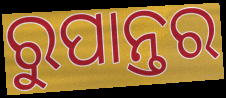
ରୁପାନ୍ତର